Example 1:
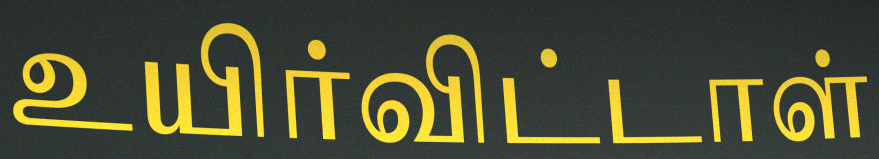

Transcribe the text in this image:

உயிர்விட்டாள்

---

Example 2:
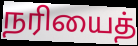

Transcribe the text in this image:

நரியைத்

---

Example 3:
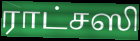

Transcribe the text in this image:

ராட்சஸி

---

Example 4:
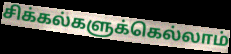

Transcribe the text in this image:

சிக்கல்களுக்கெல்லாம்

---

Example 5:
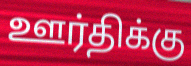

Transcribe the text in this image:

ஊர்திக்கு